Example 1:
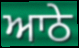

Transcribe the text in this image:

ਆਠੇ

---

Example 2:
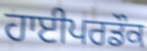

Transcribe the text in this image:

ਹਾਈਪਰਡੌਕ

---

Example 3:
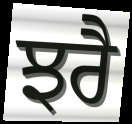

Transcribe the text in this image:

ਝਰੈ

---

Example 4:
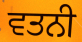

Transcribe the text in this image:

ਵਤਨੀ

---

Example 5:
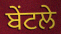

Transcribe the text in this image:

ਬੇਂਟਲੇ